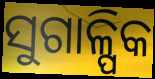
ସୁଗାଳ୍ପିକ